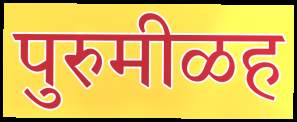
पुरुमीळह